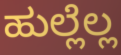
ಹುಲ್ಲೆಲ್ಲ